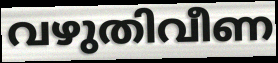
വഴുതിവീണ